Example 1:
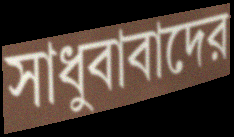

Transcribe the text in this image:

সাধুবাবাদের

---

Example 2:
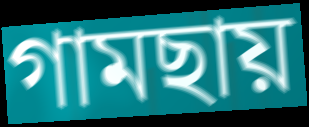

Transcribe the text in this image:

গামছায়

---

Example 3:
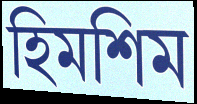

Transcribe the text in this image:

হিমশিম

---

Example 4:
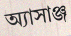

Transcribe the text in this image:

অ্যাসাঞ্জ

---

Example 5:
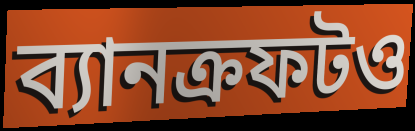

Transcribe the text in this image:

ব্যানক্রফটও